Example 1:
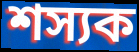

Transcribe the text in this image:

শস্যক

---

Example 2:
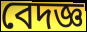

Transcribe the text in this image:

বেদজ্ঞ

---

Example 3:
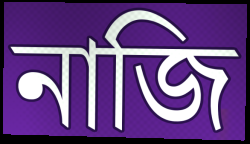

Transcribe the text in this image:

নাজি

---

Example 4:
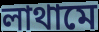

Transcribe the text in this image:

লাথামে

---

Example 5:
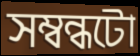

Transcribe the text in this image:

সম্বন্ধটো